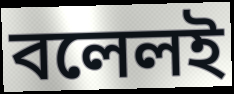
বলেলই